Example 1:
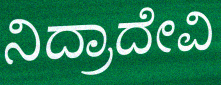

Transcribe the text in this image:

ನಿದ್ರಾದೇವಿ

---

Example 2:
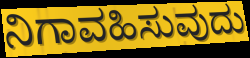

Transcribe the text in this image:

ನಿಗಾವಹಿಸುವುದು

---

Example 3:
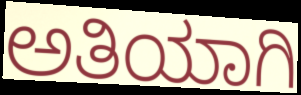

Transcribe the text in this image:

ಅತಿಯಾಗಿ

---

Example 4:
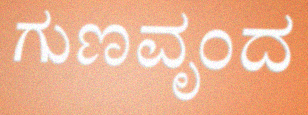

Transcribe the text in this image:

ಗುಣವೃಂದ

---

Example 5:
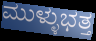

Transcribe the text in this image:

ಮುಳ್ಳುಭತ್ತ